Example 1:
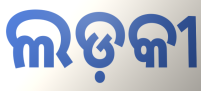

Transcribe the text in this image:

ଲଡ଼କୀ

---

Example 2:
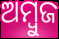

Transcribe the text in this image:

ଅମ୍ବୁଜ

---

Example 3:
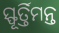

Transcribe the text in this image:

ସ୍ଫୂର୍ତ୍ତିମନ୍ତ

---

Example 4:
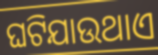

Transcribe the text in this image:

ଘଟିଯାଉଥାଏ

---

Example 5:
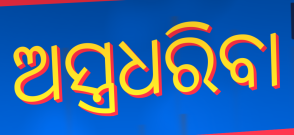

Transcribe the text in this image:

ଅସ୍ତ୍ରଧରିବା